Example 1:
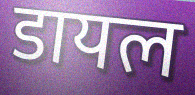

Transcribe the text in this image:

डायल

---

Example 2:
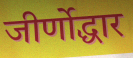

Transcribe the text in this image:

जीर्णोद्धार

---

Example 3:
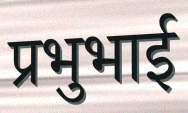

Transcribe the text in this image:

प्रभुभाई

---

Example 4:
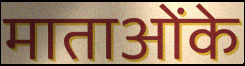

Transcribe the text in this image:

माताओंके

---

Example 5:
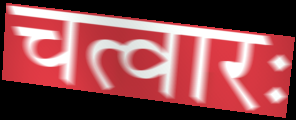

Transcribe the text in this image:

चत्वारः